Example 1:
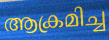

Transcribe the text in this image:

ആക്രമിച്ച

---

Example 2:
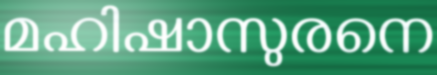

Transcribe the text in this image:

മഹിഷാസുരനെ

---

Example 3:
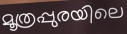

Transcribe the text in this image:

മൂത്രപ്പുരയിലെ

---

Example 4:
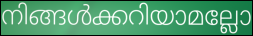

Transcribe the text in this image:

നിങ്ങൾക്കറിയാമല്ലോ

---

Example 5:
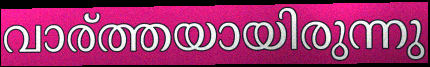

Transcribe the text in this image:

വാര്ത്തയായിരുന്നു